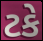
ટકે